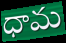
ధామ